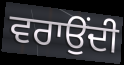
ਵਰਾਉਂਦੀ